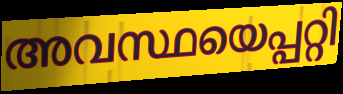
അവസ്ഥയെപ്പറ്റി